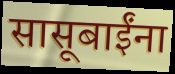
सासूबाईंना